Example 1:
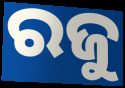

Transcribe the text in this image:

ରଜୁ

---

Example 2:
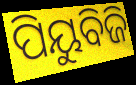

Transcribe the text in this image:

ପିୟୁବିଜି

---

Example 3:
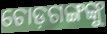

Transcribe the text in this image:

ଚୋଡ଼ଗଙ୍ଗଙ୍କୁ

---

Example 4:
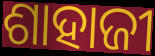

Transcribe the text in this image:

ଶାହାଜୀ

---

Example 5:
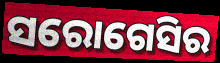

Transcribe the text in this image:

ସରୋଗେସିର